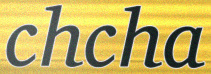
chcha